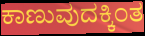
ಕಾಣುವುದಕ್ಕಿಂತ